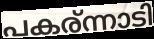
പകര്ന്നാടി